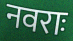
नवराः